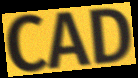
CAD